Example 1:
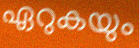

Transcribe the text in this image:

ഏറുകയും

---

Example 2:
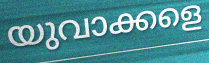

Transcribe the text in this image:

യുവാക്കളെ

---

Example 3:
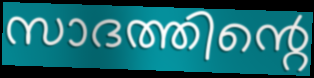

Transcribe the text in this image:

സാദത്തിന്റെ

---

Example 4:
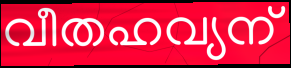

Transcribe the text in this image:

വീതഹവ്യന്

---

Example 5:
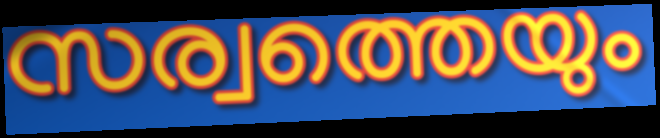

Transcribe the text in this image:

സര്വത്തെയും